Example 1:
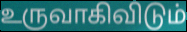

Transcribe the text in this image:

உருவாகிவிடும்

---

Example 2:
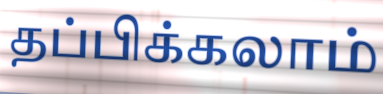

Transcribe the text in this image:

தப்பிக்கலாம்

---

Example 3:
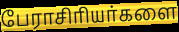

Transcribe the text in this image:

பேராசிரியர்களை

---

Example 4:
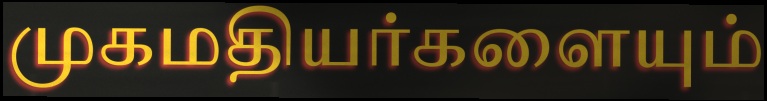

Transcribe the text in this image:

முகமதியர்களையும்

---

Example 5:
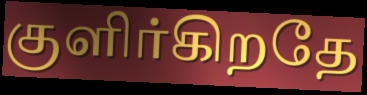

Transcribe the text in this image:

குளிர்கிறதே